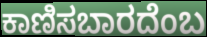
ಕಾಣಿಸಬಾರದೆಂಬ